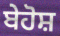
ਬੇਹੋਸ਼